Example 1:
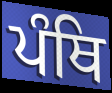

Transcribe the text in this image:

ਪੰਥਿ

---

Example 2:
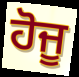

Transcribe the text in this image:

ਹੋਜੂ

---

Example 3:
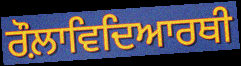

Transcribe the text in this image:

ਰੌਲ਼ਾਵਿਦਿਆਰਥੀ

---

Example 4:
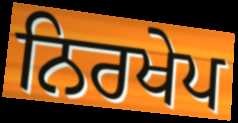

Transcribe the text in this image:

ਨਿਰਖੇਪ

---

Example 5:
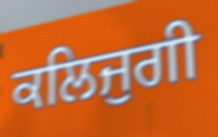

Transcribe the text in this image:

ਕਲਿਜੁਗੀ